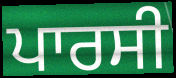
ਪਾਰਸੀ